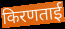
किरणताई